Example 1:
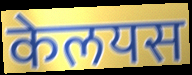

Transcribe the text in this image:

केलयस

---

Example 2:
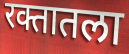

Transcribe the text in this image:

रक्तातला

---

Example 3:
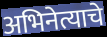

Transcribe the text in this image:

अभिनेत्याचे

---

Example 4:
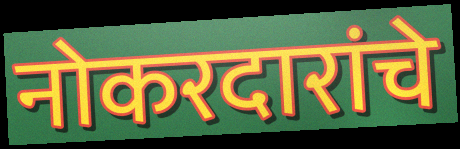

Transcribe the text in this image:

नोकरदारांचे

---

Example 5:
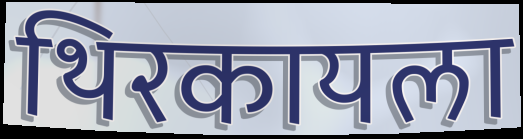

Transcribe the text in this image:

थिरकायला